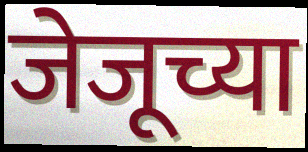
जेजूच्या